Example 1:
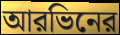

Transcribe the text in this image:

আরভিনের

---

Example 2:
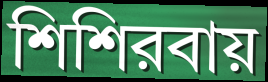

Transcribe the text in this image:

শিশিরবায়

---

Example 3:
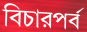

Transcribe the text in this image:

বিচারপর্ব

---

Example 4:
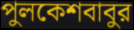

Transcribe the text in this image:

পুলকেশবাবুর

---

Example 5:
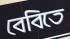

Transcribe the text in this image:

বেবিতে